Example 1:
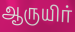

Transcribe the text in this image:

ஆருயிர்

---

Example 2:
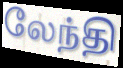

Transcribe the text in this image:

லேந்தி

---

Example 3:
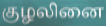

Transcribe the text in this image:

குழலினை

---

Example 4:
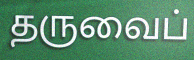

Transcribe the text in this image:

தருவைப்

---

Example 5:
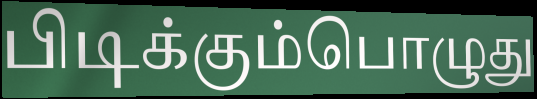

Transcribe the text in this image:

பிடிக்கும்பொழுது